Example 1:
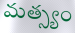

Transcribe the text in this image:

మత్స్యం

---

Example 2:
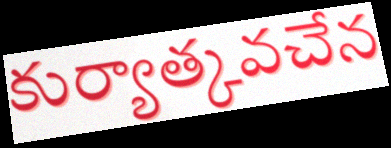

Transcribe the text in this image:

కుర్యాత్కవచేన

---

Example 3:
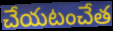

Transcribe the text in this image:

చేయటంచేత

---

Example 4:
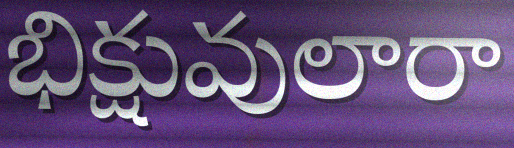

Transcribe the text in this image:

భిక్షువులారా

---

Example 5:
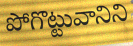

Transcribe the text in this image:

పోగొట్టువానిని